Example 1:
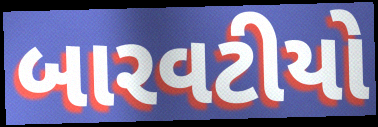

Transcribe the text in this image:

બારવટીયો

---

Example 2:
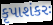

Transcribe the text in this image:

કૃપાશંકરઃ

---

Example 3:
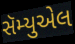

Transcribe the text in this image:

સૅમ્યુએલ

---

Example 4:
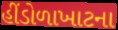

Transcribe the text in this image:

હીંડોળાખાટના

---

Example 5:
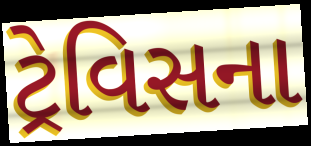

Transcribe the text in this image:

ટ્રેવિસના